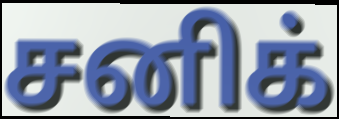
சனிக்